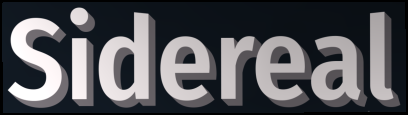
Sidereal